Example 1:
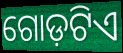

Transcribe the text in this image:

ଗୋଡ଼ଟିଏ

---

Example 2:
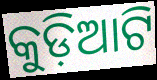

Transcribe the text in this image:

କୁଡ଼ିଆଟି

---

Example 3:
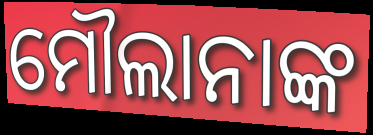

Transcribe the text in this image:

ମୌଲାନାଙ୍କ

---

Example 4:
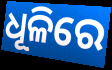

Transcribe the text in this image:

ଧୂଳିରେ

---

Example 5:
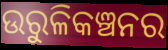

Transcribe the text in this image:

ଉରୁଳିକଞ୍ଚନର